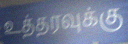
உத்தரவுக்கு